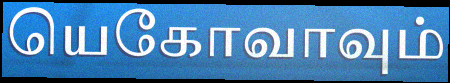
யெகோவாவும்